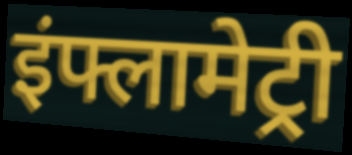
इंफ्लामेट्री